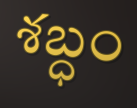
శబ్ధం